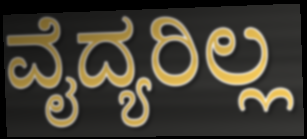
ವೈದ್ಯರಿಲ್ಲ